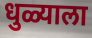
धुळ्याला